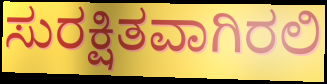
ಸುರಕ್ಷಿತವಾಗಿರಲಿ